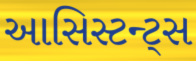
આસિસ્ટન્ટ્સ